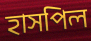
হাসপিল